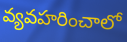
వ్యవహరించాలో